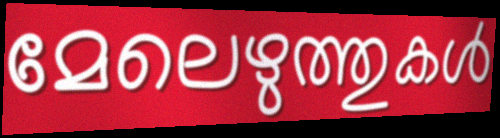
മേലെഴുത്തുകൾ